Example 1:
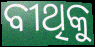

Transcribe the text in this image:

ବୀଥିକୁ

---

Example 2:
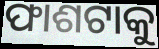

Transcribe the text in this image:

ଫାଶଟାକୁ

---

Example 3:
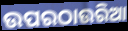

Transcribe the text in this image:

ଉପରଠାଉରିଆ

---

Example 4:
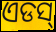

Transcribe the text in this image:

ଏଡସ୍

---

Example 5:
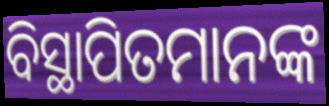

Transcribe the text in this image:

ବିସ୍ଥାପିତମାନଙ୍କ